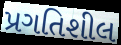
પ્રગતિશીલ